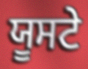
ਯੂਸਟੇ